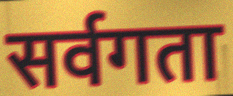
सर्वगता